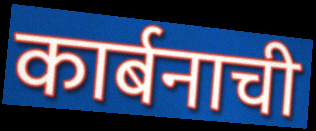
कार्बनाची